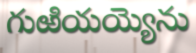
గుఱియయ్యెను